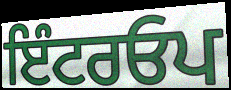
ਇੰਟਰਓਪ